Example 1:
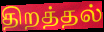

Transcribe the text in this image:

திறத்தல்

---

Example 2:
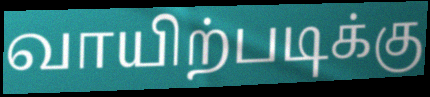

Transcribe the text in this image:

வாயிற்படிக்கு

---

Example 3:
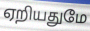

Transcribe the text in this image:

ஏறியதுமே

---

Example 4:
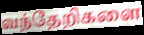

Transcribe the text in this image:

வந்தேறிகளை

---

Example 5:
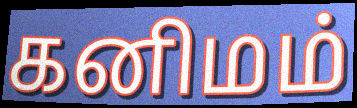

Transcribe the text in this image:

கனிமம்